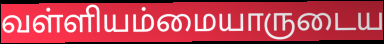
வள்ளியம்மையாருடைய